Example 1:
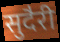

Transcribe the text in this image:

सुदैरी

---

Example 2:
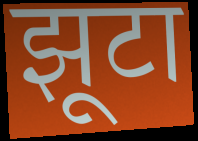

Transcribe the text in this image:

झूटा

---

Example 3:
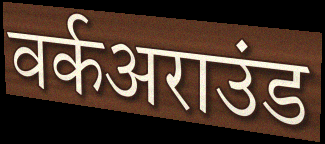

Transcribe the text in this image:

वर्कअराउंड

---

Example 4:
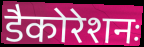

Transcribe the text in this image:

डैकोरेशनः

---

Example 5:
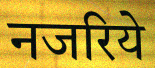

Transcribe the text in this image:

नजरिये